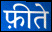
फ़ीते